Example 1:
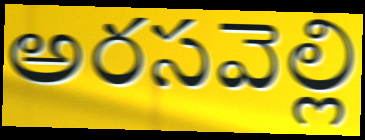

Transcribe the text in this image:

అరసవెల్లి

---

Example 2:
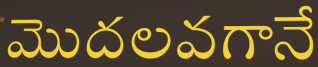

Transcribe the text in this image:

మొదలవగానే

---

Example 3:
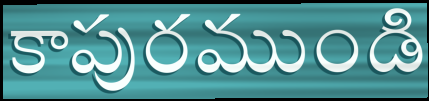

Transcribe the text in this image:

కాపురముండి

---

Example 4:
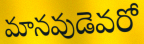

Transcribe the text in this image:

మానవుడెవరో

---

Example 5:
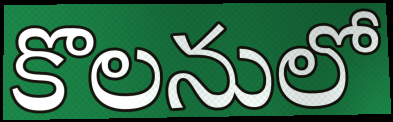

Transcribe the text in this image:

కొలనులో